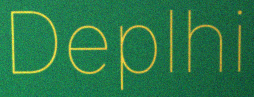
Deplhi